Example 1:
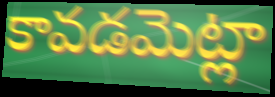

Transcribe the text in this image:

కావడమెట్లా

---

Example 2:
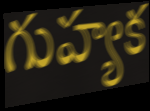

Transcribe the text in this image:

గుహ్యక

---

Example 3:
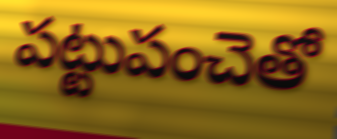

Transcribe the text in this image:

పట్టుపంచెతో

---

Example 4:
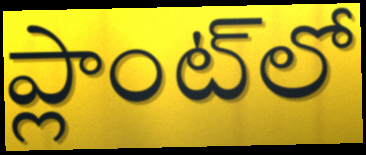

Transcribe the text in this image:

ప్లాంట్‌లో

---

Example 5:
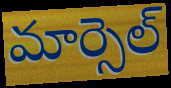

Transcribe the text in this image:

మార్సెల్